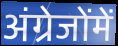
अंग्रेजोंमें